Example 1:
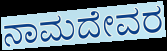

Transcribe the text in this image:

ನಾಮದೇವರ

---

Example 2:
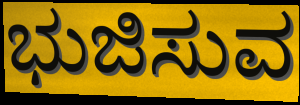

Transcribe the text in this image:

ಭುಜಿಸುವ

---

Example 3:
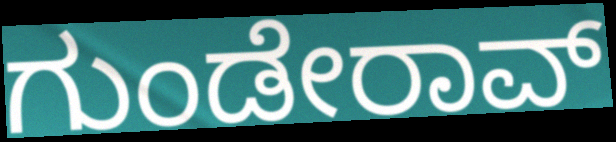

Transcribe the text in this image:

ಗುಂಡೇರಾವ್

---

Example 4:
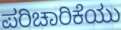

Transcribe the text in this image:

ಪರಿಚಾರಿಕೆಯು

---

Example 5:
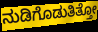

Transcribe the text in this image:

ನುಡಿಗೊಡುತಿತ್ತೋ